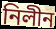
নিলীন